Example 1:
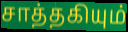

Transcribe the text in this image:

சாத்தகியும்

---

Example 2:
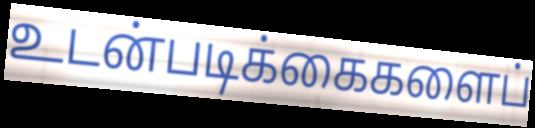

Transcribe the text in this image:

உடன்படிக்கைகளைப்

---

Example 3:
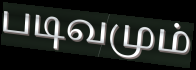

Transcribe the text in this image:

படிவமும்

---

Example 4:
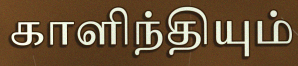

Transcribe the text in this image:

காளிந்தியும்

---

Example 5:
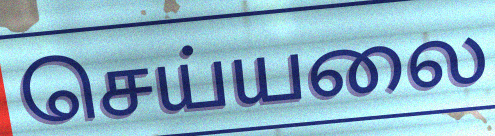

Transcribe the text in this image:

செய்யலை